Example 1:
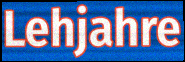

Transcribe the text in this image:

Lehjahre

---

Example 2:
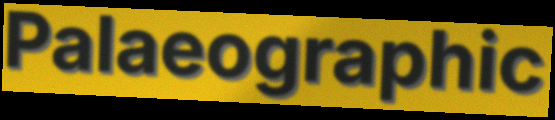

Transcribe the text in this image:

Palaeographic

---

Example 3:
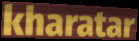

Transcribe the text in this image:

kharatar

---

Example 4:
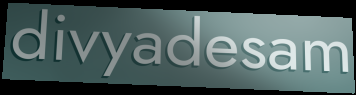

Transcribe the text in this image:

divyadesam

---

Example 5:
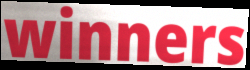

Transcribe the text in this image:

winners